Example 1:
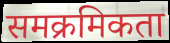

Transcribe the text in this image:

समक्रमिकता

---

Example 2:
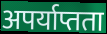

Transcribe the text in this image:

अपर्याप्तता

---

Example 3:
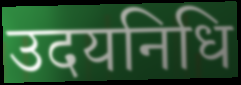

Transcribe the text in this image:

उदयनिधि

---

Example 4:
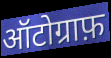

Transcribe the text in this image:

ऑटोग्राफ़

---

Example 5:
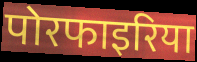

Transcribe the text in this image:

पोरफाइरिया